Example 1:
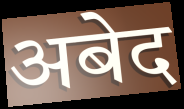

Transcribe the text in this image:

अबेद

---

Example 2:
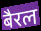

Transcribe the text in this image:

बैरल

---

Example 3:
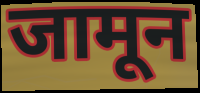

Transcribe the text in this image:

जामून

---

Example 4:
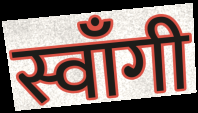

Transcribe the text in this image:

स्वाँगी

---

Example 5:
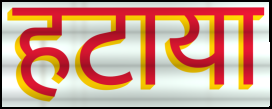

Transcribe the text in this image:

हटाया